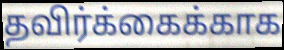
தவிர்க்கைக்காக